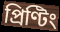
প্ৰিণ্টিং